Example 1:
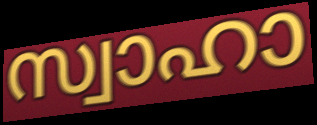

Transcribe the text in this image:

സ്വാഹാ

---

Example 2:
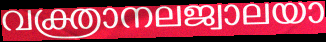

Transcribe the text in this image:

വക്ത്രാനലജ്വാലയാ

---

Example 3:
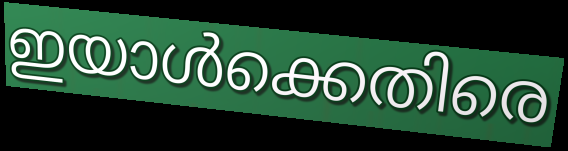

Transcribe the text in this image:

ഇയാൾക്കെതിരെ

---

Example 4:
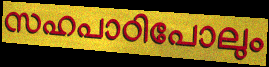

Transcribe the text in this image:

സഹപാഠിപോലും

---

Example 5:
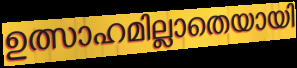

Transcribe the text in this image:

ഉത്സാഹമില്ലാതെയായി